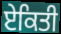
ਏਕਿਤੀ